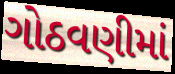
ગોઠવણીમાં